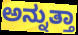
ಅನ್ನುತ್ತಾ